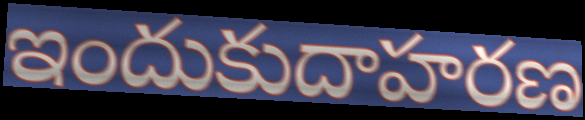
ఇందుకుదాహరణ